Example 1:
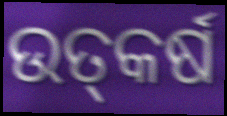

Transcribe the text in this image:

ଉତ୍‌କର୍ଷ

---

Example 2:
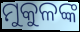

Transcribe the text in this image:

ମୁକୁଳଙ୍କ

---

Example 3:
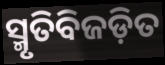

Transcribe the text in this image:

ସ୍ମୃତିବିଜଡ଼ିତ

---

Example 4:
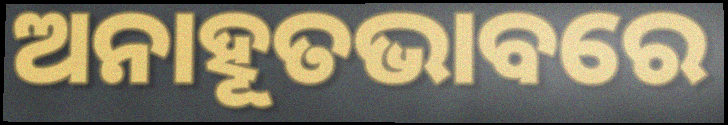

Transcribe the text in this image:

ଅନାହୂତଭାବରେ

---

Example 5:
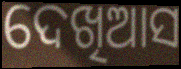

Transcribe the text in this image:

ଦେଖିଆସ